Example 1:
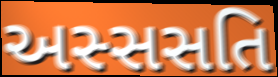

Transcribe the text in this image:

અસ્સસતિ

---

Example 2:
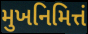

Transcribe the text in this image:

મુખનિમિત્તં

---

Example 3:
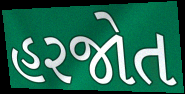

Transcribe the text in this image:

હરજોત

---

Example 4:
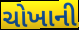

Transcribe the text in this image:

ચોખાની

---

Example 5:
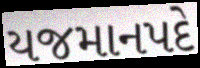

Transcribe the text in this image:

યજમાનપદે